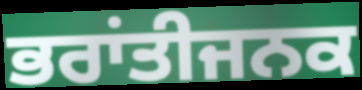
ਭਰਾਂਤੀਜਨਕ